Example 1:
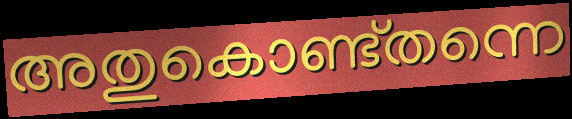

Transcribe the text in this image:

അതുകൊണ്ട്തന്നെ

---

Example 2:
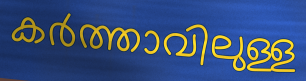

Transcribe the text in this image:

കർത്താവിലുള്ള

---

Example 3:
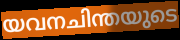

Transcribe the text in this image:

യവനചിന്തയുടെ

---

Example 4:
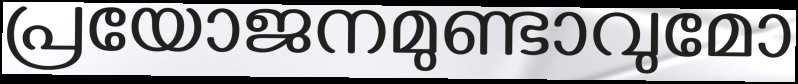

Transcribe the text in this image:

പ്രയോജനമുണ്ടാവുമോ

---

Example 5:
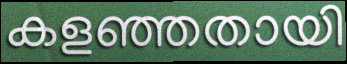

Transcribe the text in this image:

കളഞ്ഞതായി